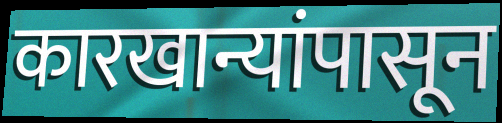
कारखान्यांपासून